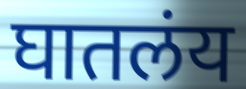
घातलंय